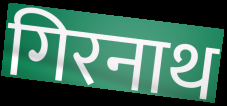
गिरनाथ